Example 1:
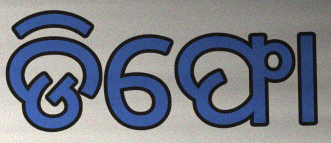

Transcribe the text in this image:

ଡିଫୋ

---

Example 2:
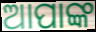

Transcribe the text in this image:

ଆପାଙ୍କ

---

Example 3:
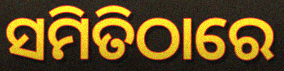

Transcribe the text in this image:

ସମିତିଠାରେ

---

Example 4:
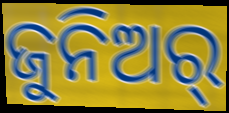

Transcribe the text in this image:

ଜୁନିଅର୍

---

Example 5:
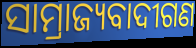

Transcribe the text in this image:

ସାମ୍ରାଜ୍ୟବାଦୀଗଣ